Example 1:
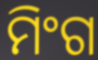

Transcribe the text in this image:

ମିଂଗ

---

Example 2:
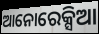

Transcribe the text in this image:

ଆନୋରେକ୍ସିଆ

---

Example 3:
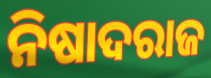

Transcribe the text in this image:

ନିଷାଦରାଜ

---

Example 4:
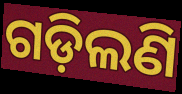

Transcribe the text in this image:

ଗଡ଼ିଲଣି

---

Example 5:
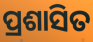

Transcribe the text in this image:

ପ୍ରଶାସିତ